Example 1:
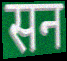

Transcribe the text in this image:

सन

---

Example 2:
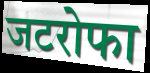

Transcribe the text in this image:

जटरोफा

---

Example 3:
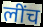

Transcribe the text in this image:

लींच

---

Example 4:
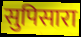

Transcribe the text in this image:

सुपिसारा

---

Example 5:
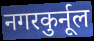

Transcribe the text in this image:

नगरकुर्नूल